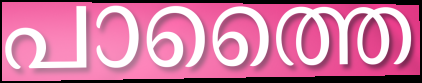
പാത്തൈ